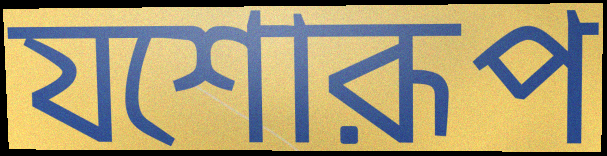
যশোরূপ